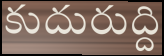
కుదురుద్ది